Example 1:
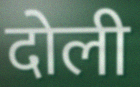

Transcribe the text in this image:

दोली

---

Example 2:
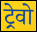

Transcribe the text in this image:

ट्रेवो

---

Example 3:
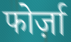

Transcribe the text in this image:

फोर्ज़ा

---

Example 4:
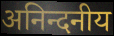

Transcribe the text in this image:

अनिन्दनीय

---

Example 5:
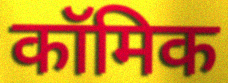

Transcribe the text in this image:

कॉमिक